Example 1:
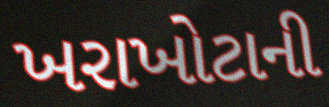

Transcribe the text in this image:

ખરાખોટાની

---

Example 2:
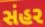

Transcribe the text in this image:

સંહર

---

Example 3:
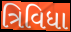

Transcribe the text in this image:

ત્રિવિધા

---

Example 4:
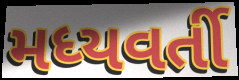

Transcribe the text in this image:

મધ્યવર્તી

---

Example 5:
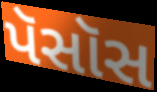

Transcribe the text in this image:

પૅસૉસ